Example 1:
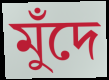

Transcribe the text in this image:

মুঁদে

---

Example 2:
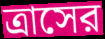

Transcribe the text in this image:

ত্রাসের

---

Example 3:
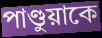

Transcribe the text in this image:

পাণ্ডুয়াকে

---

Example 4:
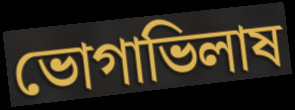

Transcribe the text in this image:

ভোগাভিলাষ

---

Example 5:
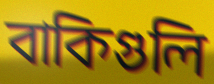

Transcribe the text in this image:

বাকিগুলি